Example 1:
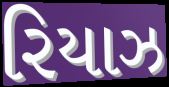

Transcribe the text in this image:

રિયાઝ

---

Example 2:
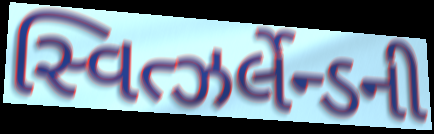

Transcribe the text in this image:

સ્વિત્ઝર્લેન્ડની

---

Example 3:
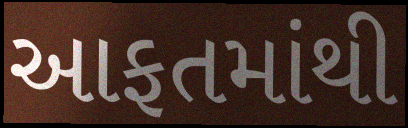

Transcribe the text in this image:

આફતમાંથી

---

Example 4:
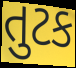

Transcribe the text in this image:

તુટક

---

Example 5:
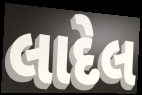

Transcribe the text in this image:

લાદેલ